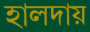
হালদায়